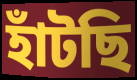
হাঁটছি